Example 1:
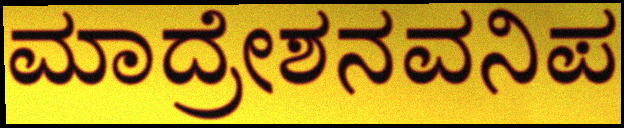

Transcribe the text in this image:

ಮಾದ್ರೇಶನವನಿಪ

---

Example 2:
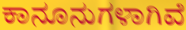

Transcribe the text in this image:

ಕಾನೂನುಗಳಾಗಿವೆ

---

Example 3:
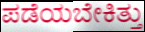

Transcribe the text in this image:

ಪಡೆಯಬೇಕಿತ್ತು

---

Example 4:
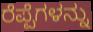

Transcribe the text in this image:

ರೆಪ್ಪೆಗಳನ್ನು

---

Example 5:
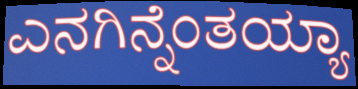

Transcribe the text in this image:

ಎನಗಿನ್ನೆಂತಯ್ಯಾ